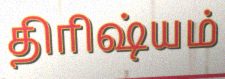
திரிஷ்யம்